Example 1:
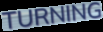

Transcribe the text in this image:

TURNING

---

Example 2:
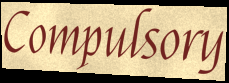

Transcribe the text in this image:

Compulsory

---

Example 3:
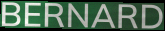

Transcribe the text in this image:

BERNARD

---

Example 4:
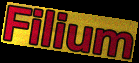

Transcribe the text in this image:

Filium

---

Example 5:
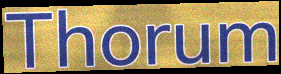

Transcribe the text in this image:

Thorum